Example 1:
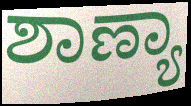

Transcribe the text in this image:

ಶಾಣ್ಯಾ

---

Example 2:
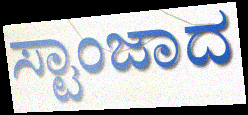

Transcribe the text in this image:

ಸ್ಟಾಂಜಾದ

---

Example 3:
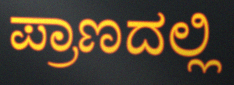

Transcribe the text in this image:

ಪ್ರಾಣದಲ್ಲಿ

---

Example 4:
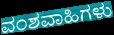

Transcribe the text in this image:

ವಂಶವಾಹಿಗಳು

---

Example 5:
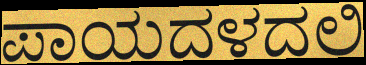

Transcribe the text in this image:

ಪಾಯದಳದಲಿ